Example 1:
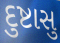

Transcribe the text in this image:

દુષ્ટાસુ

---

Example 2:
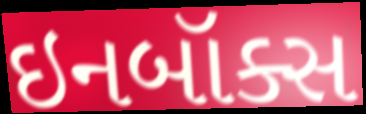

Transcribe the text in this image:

ઇનબૉક્સ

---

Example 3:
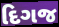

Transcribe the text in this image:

દિગજ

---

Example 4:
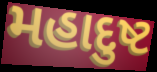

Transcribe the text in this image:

મહાદુષ્ટ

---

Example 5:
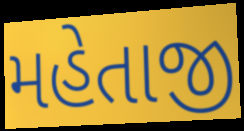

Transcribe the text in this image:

મહેતાજી